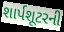
શાર્પશૂટરની